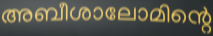
അബീശാലോമിന്റെ